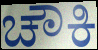
ಚೌಕಿ